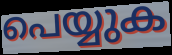
പെയ്യുക